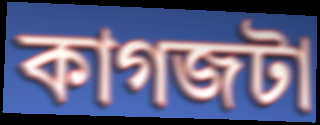
কাগজটা